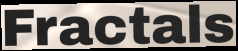
Fractals